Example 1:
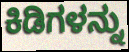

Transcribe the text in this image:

ಕಿಡಿಗಳನ್ನು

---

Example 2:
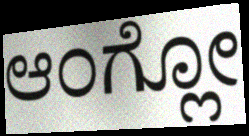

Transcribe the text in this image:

ಆಂಗ್ಲೋ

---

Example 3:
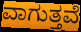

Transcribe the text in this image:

ವಾಗುತ್ತವೆ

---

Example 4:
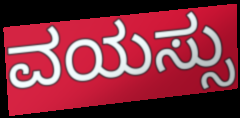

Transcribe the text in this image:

ವಯಸ್ಸು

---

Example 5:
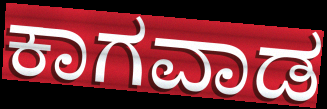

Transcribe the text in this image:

ಕಾಗವಾಡ